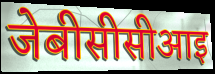
जेबीसीसीआइ